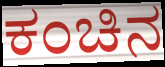
ಕಂಚಿನ